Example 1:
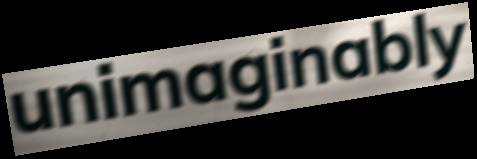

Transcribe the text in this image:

unimaginably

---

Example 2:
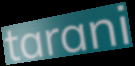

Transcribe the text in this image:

tarani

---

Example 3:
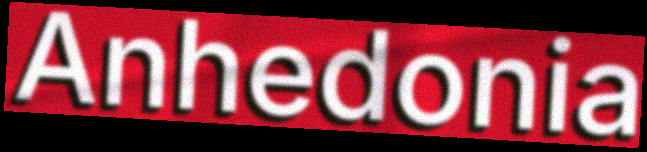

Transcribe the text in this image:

Anhedonia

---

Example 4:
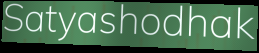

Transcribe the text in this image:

Satyashodhak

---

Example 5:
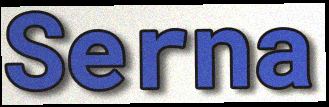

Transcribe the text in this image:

Serna